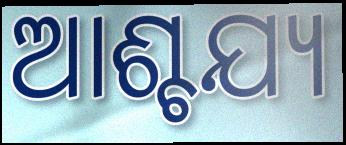
ଆଶ୍ଚଯ୍ୟ